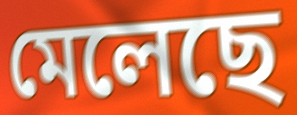
মেলেছে